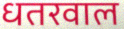
धतरवाल